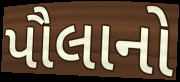
પૌલાનો